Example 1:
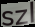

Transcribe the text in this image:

szl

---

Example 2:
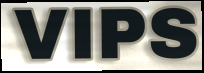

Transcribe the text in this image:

VIPS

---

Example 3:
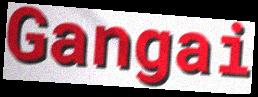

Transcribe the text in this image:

Gangai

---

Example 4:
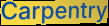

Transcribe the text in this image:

Carpentry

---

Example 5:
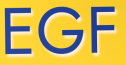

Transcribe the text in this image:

EGF